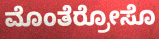
ಮೊಂತೆರ್ರೋಸೊ